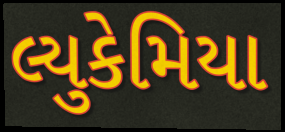
લ્યુકેમિયા